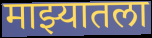
माझ्यातला